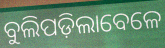
ବୁଲିପଡ଼ିଲାବେଳେ